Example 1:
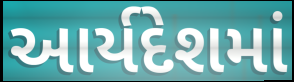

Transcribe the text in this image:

આર્યદેશમાં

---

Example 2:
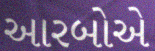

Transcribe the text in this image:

આરબોએ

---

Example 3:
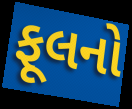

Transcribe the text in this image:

ફૂલનો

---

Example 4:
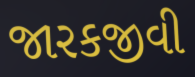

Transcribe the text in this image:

જારકજીવી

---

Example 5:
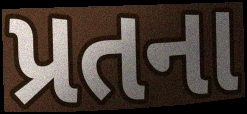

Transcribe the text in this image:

પ્રતના